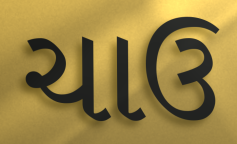
ચાઉ